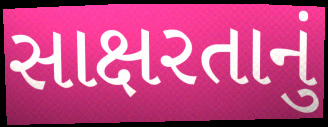
સાક્ષરતાનું